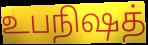
உபநிஷத்